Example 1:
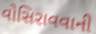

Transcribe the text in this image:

વોસિરાવવાની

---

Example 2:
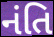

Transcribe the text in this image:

નંતિ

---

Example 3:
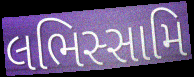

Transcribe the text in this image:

લભિસ્સામિ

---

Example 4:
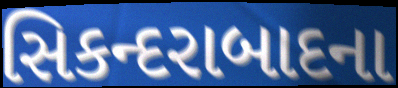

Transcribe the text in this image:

સિકન્દરાબાદના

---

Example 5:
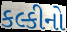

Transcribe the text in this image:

કલ્કીનો